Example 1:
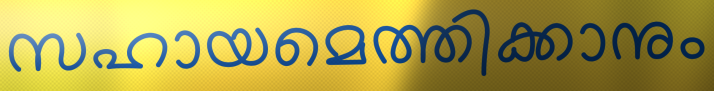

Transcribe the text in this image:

സഹായമെത്തിക്കാനും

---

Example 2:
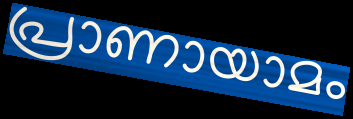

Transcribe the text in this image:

പ്രാണായാമം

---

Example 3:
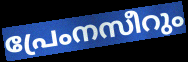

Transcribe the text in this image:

പ്രേംനസീറും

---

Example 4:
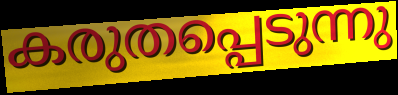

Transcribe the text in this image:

കരുതപ്പെടുന്നു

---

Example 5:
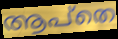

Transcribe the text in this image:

ആപ്‌തെ